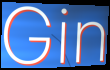
Gin